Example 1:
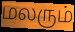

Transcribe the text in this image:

மலரும்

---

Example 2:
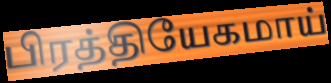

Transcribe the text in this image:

பிரத்தியேகமாய்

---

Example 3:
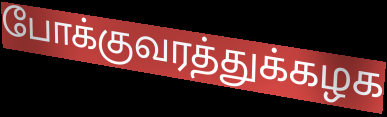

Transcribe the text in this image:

போக்குவரத்துக்கழக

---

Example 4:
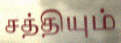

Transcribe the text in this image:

சத்தியும்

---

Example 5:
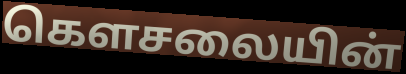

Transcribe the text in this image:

கௌசலையின்